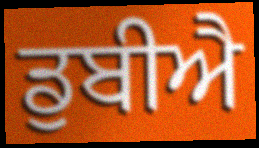
ਡੁਬੀਐ